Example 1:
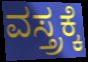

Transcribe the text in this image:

ವಸ್ತ್ರಕ್ಕೆ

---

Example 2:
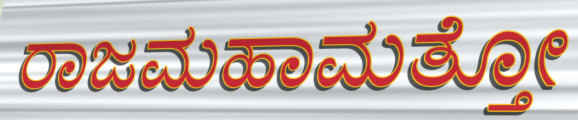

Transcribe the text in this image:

ರಾಜಮಹಾಮತ್ತೋ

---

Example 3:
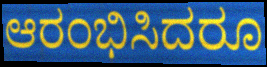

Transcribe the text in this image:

ಆರಂಭಿಸಿದರೂ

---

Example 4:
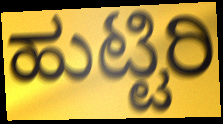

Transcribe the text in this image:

ಹುಟ್ಟಿರಿ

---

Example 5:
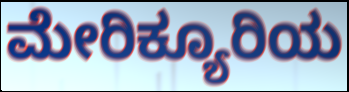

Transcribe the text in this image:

ಮೇರಿಕ್ಯೂರಿಯ